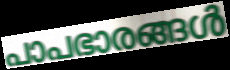
പാപഭാരങ്ങൾ